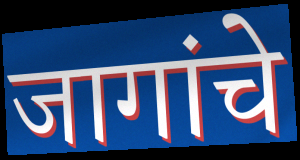
जागांचे